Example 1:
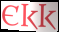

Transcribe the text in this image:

Ekk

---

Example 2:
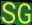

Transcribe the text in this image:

SG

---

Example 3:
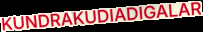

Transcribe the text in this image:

KUNDRAKUDIADIGALAR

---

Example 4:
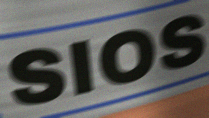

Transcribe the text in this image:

SIOS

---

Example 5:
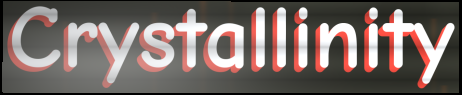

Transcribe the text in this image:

Crystallinity